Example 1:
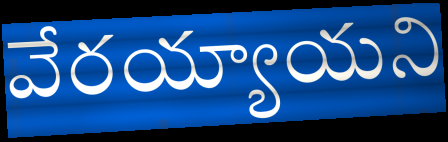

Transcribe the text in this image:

వేరయ్యాయని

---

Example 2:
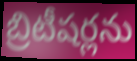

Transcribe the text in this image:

బ్రిటీషర్లను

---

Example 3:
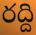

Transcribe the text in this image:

రద్ది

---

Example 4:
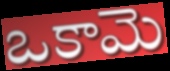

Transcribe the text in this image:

ఒకామె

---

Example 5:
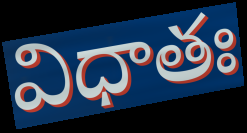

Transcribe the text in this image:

విధాతః